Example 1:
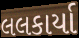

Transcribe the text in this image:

લલકાર્યા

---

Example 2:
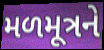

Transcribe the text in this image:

મળમૂત્રને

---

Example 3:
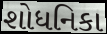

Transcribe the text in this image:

શોધનિકા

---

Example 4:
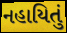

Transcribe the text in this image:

નહાયિતું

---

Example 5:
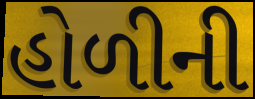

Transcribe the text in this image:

હોળીની